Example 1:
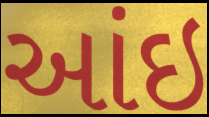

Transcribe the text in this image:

આંઇ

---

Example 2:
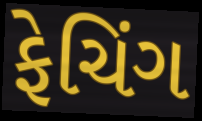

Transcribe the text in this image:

ફેચિંગ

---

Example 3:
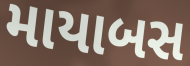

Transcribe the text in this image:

માયાબસ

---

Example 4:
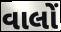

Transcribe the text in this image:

વાલોં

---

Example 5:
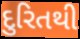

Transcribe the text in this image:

દુરિતથી